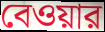
বেওয়ার